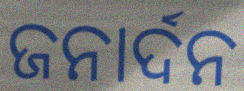
ଜନାର୍ଦନ